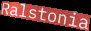
Ralstonia